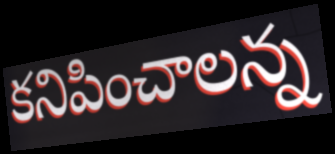
కనిపించాలన్న